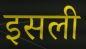
इसली